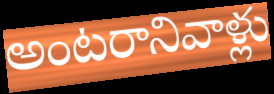
అంటరానివాళ్లు